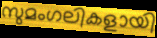
സുമംഗലികളായി